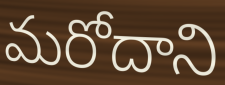
మరోదాని